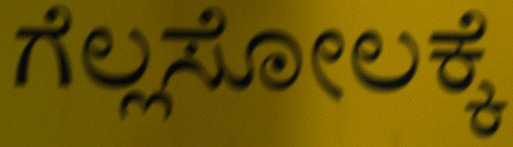
ಗೆಲ್ಲಸೋಲಕ್ಕೆ